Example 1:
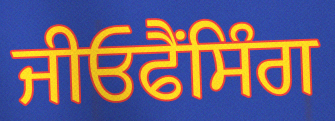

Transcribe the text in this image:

ਜੀਓਫੈਂਸਿੰਗ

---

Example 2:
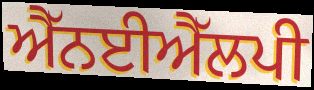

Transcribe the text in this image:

ਐੱਨਈਐੱਲਪੀ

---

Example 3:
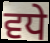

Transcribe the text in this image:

ਵਧੇ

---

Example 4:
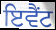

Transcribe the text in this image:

ਇਵੈਂਟ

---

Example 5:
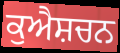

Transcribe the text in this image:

ਕੁਐਸ਼ਚਨ